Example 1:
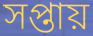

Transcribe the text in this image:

সপ্তায়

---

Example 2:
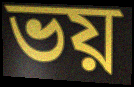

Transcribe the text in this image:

ভয়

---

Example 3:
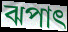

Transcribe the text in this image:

ঝপাৎ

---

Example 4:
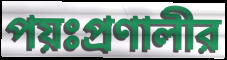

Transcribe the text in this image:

পয়ঃপ্রণালীর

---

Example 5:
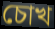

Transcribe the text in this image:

চোখ